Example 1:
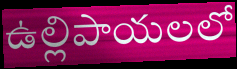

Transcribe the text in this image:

ఉల్లిపాయలలో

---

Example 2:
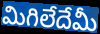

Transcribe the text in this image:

మిగిలేదేమీ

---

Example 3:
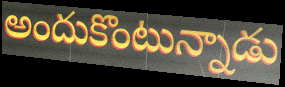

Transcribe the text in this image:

అందుకొంటున్నాడు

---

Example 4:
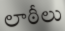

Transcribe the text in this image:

లాఠీలు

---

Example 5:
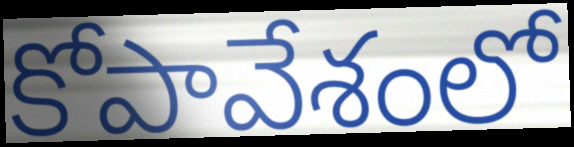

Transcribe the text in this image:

కోపావేశంలో